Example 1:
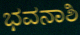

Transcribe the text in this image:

ಭವನಾಶಿ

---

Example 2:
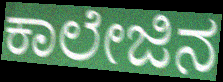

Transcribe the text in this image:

ಕಾಲೇಜಿನ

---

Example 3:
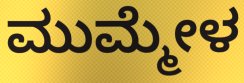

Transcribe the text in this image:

ಮುಮ್ಮೇಳ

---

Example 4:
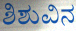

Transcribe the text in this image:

ಶಿಶುವಿನ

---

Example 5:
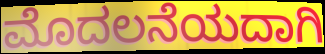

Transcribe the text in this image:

ಮೊದಲನೆಯದಾಗಿ